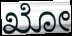
ಖೋ